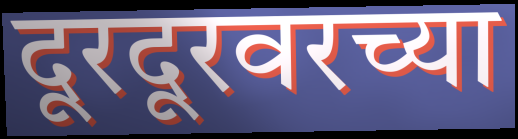
दूरदूरवरच्या